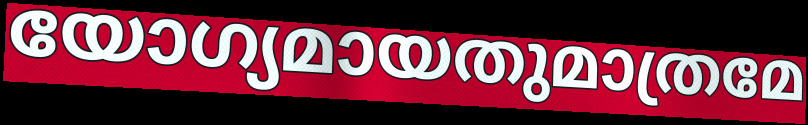
യോഗ്യമായതുമാത്രമേ